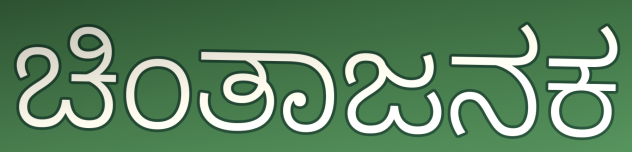
ಚಿಂತಾಜನಕ